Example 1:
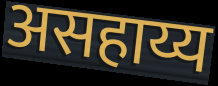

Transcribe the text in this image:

असहाय्य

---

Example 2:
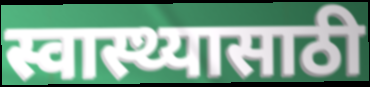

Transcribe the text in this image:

स्वास्थ्यासाठी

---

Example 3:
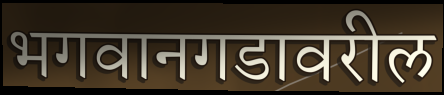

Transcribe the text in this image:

भगवानगडावरील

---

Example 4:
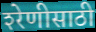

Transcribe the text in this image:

श्रेणीसाठी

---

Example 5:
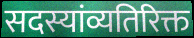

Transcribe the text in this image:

सदस्यांव्यतिरिक्त